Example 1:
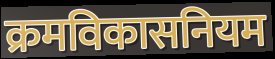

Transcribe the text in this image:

क्रमविकासनियम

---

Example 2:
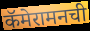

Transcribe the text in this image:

कॅमेरामनची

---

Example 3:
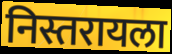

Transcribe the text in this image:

निस्तरायला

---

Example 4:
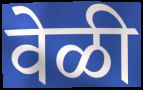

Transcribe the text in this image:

वेळी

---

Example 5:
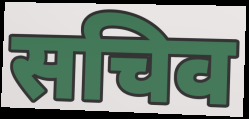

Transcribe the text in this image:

सचिव